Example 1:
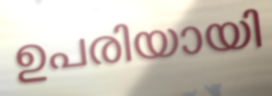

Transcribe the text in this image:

ഉപരിയായി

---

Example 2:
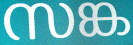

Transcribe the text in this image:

സങ്ക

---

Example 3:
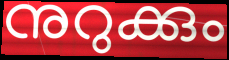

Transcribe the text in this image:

നുറുക്കും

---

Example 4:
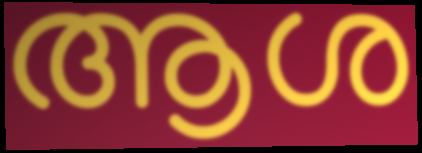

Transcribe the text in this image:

ആശ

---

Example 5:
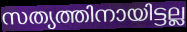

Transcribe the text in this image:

സത്യത്തിനായിട്ടല്ല